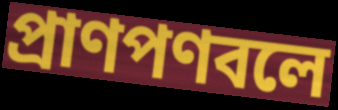
প্রাণপণবলে